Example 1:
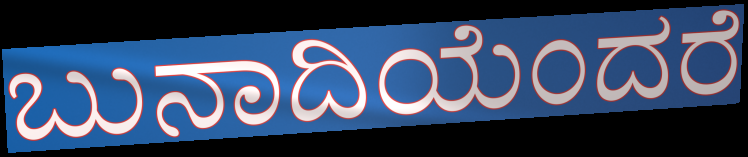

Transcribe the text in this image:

ಬುನಾದಿಯೆಂದರೆ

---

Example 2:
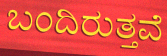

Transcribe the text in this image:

ಬಂದಿರುತ್ತವೆ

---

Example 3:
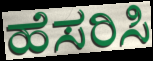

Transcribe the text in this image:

ಹೆಸರಿಸಿ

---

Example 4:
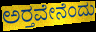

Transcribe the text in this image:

ಅರ‍್ತವೇನೆಂದು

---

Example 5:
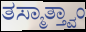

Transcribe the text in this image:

ತಸ್ಮಾತ್ತ್ವಾಂ